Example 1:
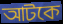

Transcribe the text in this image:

আটকে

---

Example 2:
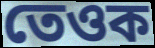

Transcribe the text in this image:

তেওক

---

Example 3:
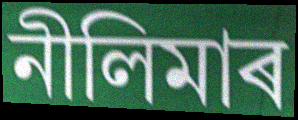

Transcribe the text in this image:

নীলিমাৰ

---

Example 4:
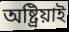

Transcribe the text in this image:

অষ্ট্ৰিয়াই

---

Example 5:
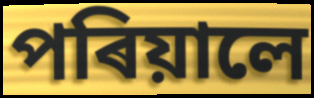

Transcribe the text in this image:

পৰিয়ালে